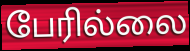
பேரில்லை